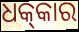
ଧକ୍‍କାର